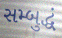
સમ્બુદ્ધં